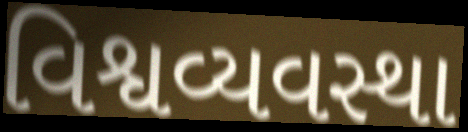
વિશ્વવ્યવસ્થા